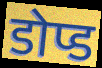
डोप्ड